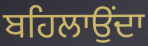
ਬਹਿਲਾਉਂਦਾ